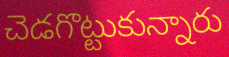
చెడగొట్టుకున్నారు